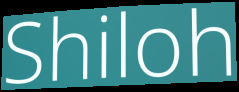
Shiloh